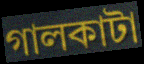
গালকাটা